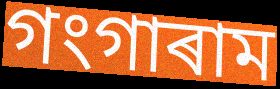
গংগাৰাম